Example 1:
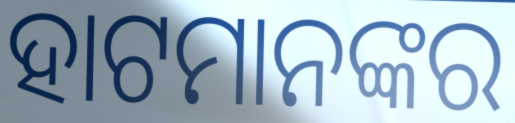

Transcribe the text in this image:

ହାଟମାନଙ୍କର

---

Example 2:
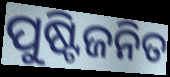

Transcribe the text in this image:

ପୁଷ୍ଟିଜନିତ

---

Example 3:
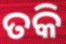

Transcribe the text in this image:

ତକି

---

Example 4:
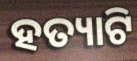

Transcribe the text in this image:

ହତ୍ୟାଟି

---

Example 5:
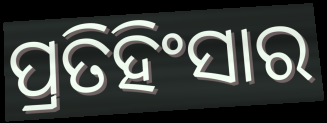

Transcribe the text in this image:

ପ୍ରତିହିଂସାର